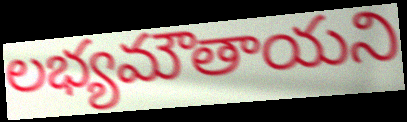
లభ్యమౌతాయని